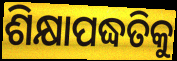
ଶିକ୍ଷାପଦ୍ଧତିକୁ